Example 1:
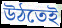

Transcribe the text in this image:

উঠতেই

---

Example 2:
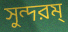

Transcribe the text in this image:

সুন্দরম্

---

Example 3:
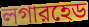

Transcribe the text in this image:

লগারহেড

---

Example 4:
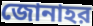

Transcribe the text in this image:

জোনাহর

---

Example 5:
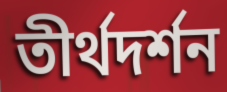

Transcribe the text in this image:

তীর্থদর্শন